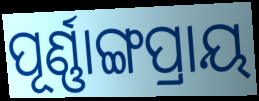
ପୂର୍ଣ୍ଣାଙ୍ଗପ୍ରାୟ